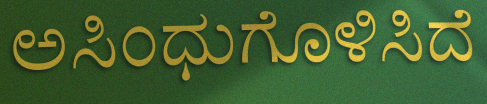
ಅಸಿಂಧುಗೊಳಿಸಿದೆ